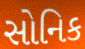
સોનિક